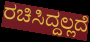
ರಚಿಸಿದ್ದಲ್ಲದೆ